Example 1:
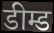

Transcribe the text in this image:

डीम्ड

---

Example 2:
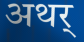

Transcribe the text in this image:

अथर्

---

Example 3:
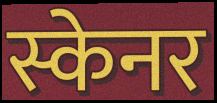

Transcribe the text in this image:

स्‍केनर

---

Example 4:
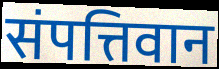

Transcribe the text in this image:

संपत्तिवान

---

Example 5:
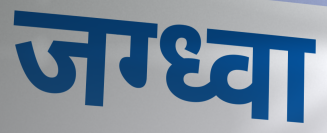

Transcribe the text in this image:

जग्ध्वा